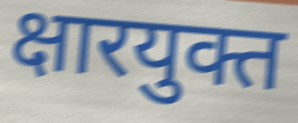
क्षारयुक्त